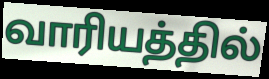
வாரியத்தில்